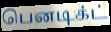
பெனடிக்ட்